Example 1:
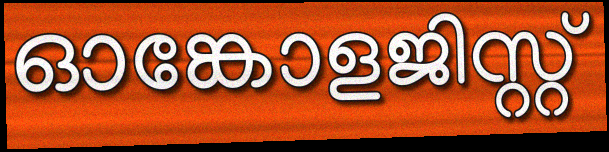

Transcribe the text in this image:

ഓങ്കോളജിസ്റ്റ്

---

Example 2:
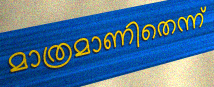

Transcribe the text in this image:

മാത്രമാണിതെന്ന്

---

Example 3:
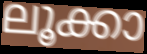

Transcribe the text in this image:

ലൂക്കാ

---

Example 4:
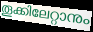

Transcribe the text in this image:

തൂക്കിലേറ്റാനും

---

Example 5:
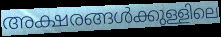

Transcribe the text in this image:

അക്ഷരങ്ങൾക്കുള്ളിലെ